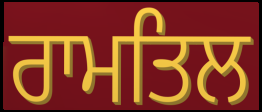
ਰਾਮਤਿਲ